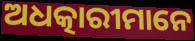
ଅଧତ୍କାରୀମାନେ